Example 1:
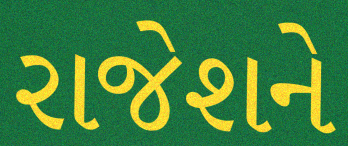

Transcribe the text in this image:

રાજેશને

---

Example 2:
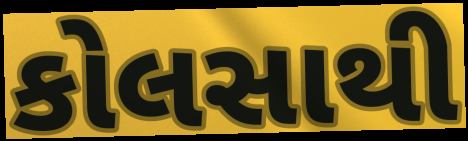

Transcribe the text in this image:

કોલસાથી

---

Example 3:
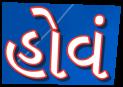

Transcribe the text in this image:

હોવં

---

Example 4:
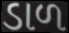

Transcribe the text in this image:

ડાળ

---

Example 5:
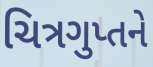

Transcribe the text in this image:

ચિત્રગુપ્તને